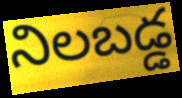
నిలబడ్డ